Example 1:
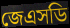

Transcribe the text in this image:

জেএসডি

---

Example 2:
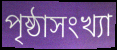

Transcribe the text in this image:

পৃষ্ঠাসংখ্যা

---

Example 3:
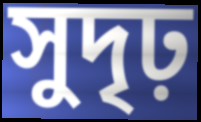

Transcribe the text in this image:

সুদৃঢ়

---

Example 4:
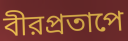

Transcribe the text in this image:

বীরপ্রতাপে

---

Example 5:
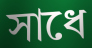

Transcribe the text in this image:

সাধে